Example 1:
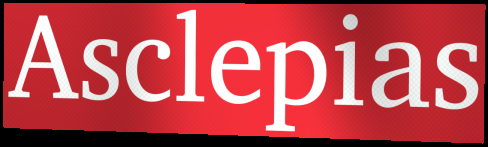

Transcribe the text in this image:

Asclepias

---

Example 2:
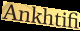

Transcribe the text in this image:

Ankhtifi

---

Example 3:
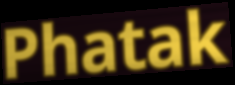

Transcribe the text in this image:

Phatak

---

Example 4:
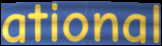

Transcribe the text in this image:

ational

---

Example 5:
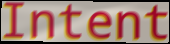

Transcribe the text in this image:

Intent